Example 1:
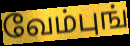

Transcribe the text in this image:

வேம்புங்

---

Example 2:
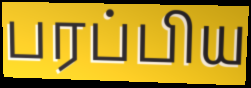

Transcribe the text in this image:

பரப்பிய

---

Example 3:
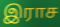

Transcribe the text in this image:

இராச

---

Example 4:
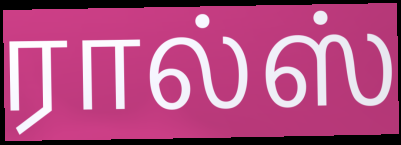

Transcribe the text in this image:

ரால்ஸ்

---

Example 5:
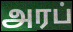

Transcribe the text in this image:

அரப்